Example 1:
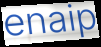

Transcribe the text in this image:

enaip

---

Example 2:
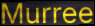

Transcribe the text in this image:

Murree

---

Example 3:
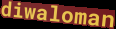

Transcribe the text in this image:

diwaloman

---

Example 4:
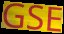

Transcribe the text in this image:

GSE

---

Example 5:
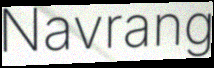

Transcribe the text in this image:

Navrang